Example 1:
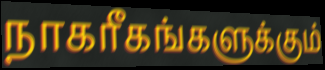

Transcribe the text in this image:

நாகரீகங்களுக்கும்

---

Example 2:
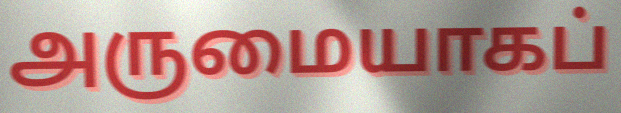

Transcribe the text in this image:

அருமையாகப்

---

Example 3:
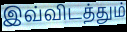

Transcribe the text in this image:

இவ்விடத்தும்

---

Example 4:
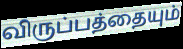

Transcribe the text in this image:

விருப்பத்தையும்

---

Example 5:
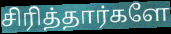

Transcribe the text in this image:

சிரித்தார்களே